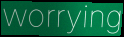
worrying